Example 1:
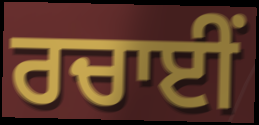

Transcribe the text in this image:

ਰਚਾਈਂ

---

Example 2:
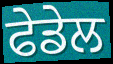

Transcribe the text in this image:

ਫੇਡੇਲ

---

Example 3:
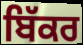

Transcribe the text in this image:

ਬਿੱਕਰ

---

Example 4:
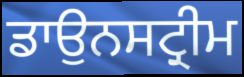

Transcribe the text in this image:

ਡਾਉਨਸਟ੍ਰੀਮ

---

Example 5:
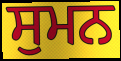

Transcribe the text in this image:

ਸੁਮਨ